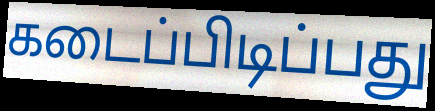
கடைப்பிடிப்பது